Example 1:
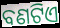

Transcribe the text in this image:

ବଣଟିଏ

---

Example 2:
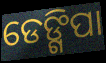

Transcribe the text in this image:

ଡେଙ୍ଗିପା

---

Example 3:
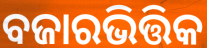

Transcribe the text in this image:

ବଜାରଭିତ୍ତିକ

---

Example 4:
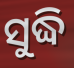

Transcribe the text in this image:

ସୁଦ୍ଧି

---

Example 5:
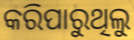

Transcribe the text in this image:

କରିପାରୁଥିଲୁ